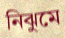
নিঝুমে